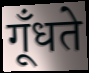
गूँधते